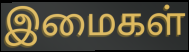
இமைகள்